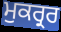
ਮੁਕਰ੍ਰਰ